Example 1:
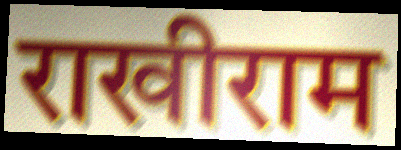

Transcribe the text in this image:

राखीराम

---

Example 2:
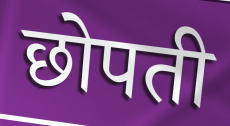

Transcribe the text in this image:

छोपती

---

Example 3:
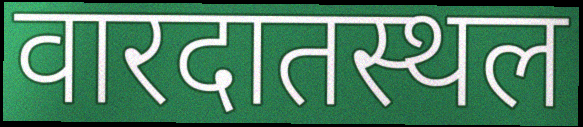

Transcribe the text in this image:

वारदातस्थल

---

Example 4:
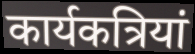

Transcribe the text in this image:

कार्यकत्रियां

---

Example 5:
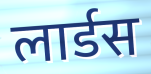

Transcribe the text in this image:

लार्डस